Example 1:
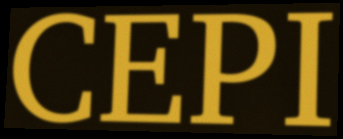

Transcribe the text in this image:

CEPI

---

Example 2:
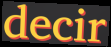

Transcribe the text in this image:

decir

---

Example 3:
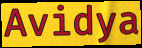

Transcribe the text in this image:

Avidya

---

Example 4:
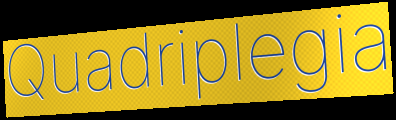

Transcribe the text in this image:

Quadriplegia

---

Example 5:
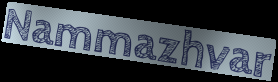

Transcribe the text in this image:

Nammazhvar